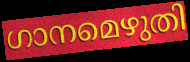
ഗാനമെഴുതി